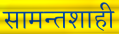
सामन्तशाही